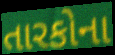
તારકોના